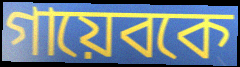
গায়েবকে